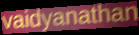
vaidyanathan